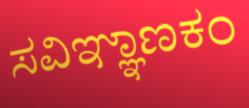
ಸವಿಞ್ಞಾಣಕಂ